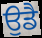
ਉਡੈ